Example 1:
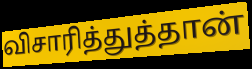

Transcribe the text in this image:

விசாரித்துத்தான்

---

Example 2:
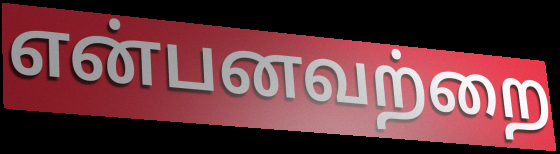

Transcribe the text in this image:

என்பனவற்றை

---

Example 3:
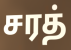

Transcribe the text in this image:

சரத்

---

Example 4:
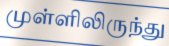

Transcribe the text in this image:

முள்ளிலிருந்து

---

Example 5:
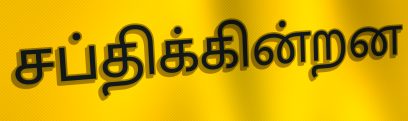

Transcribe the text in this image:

சப்திக்கின்றன